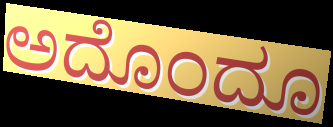
ಅದೊಂದೂ